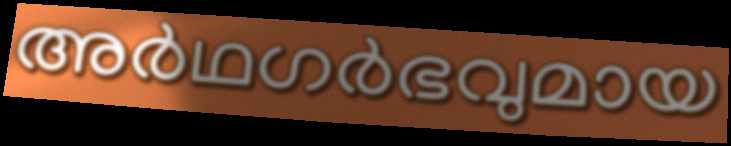
അർഥഗർഭവുമായ